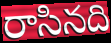
రాసినది